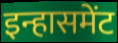
इन्हासमेंट